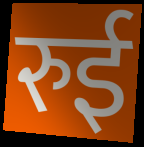
रुई